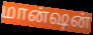
மான்ஷன்